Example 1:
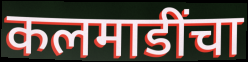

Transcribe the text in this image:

कलमाडींचा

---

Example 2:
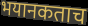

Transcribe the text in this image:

भयानकताच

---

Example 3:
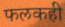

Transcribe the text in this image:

फलकही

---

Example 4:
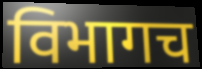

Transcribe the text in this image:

विभागच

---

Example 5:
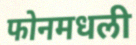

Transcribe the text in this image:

फोनमधली